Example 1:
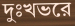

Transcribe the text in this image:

দুঃখভরে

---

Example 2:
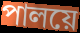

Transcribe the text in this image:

পালয়ে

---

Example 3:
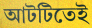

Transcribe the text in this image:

আটটিতেই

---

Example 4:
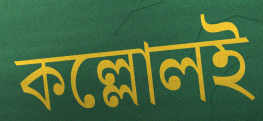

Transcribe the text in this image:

কল্লোলই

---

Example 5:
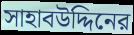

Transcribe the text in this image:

সাহাবউদ্দিনের